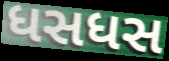
ધસધસ